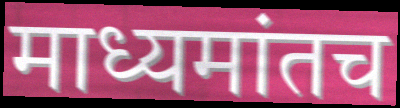
माध्यमांतच